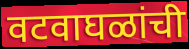
वटवाघळांची